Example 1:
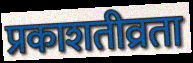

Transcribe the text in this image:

प्रकाशतीव्रता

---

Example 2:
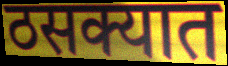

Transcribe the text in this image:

ठसक्यात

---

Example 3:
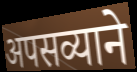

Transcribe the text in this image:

अपसव्याने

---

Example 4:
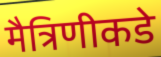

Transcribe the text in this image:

मैत्रिणीकडे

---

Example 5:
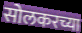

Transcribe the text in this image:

सोलकरच्या